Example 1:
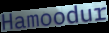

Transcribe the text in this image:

Hamoodur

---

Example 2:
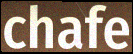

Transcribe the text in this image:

chafe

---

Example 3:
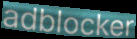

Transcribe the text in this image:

adblocker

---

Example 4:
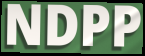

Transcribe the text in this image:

NDPP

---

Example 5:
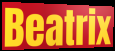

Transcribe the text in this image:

Beatrix